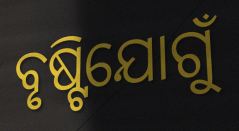
ବୃଷ୍ଟିଯୋଗୁଁ